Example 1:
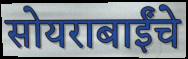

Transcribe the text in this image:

सोयराबाईंचे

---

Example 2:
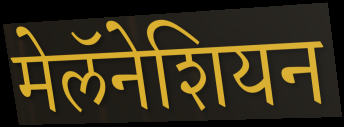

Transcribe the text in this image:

मेलॅनेशियन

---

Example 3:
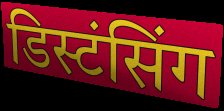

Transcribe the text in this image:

डिस्टंसिंग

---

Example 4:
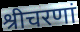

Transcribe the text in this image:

श्रीचरणां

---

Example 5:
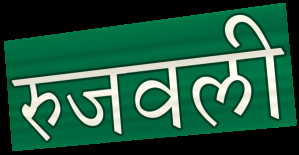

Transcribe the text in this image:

रुजवली